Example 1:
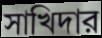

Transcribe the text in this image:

সাখিদার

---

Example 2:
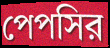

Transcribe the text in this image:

পেপসির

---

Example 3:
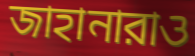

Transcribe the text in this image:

জাহানারাও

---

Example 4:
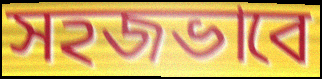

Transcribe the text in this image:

সহজভাবে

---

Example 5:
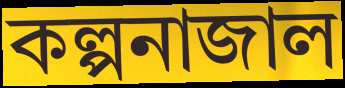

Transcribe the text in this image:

কল্পনাজাল